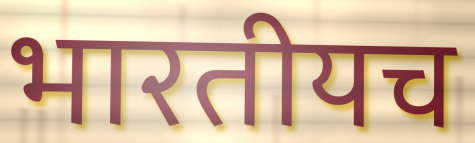
भारतीयच